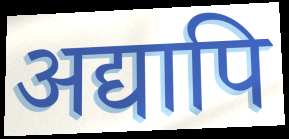
अद्यापि